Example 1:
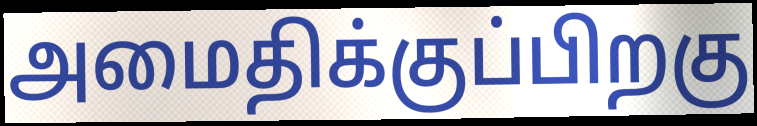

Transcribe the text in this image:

அமைதிக்குப்பிறகு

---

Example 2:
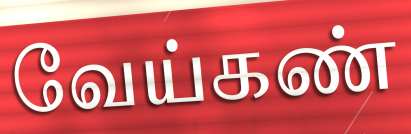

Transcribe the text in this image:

வேய்கண்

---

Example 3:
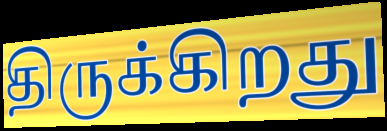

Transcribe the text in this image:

திருக்கிறது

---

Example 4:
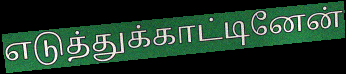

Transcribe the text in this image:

எடுத்துக்காட்டினேன்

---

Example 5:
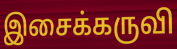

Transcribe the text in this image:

இசைக்கருவி